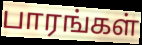
பாரங்கள்